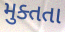
મુક્તતા